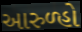
આરુળ્હો